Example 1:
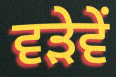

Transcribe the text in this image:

ਵੜੇਵੇਂ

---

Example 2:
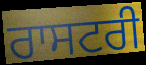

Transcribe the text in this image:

ਰਾਸਟਰੀ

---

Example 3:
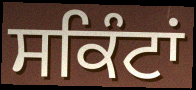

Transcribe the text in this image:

ਸਕਿੰਟਾਂ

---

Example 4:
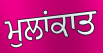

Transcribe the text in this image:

ਮੁਲਾਂਕਾਤ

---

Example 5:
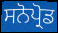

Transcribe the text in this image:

ਸਨੋਪ੍ਰੋਡ